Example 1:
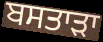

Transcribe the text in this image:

ਬਸਤਾੜਾ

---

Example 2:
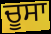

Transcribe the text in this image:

ਚੂਸਾ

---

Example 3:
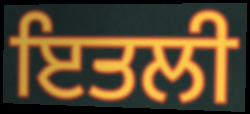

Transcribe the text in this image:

ਇਤਲੀ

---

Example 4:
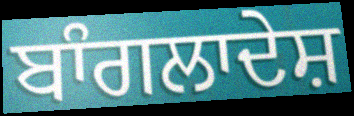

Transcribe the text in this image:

ਬਾੰਗਲਾਦੇਸ਼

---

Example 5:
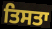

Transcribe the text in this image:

ਤਿਸਤਾ